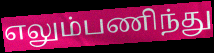
எலும்பணிந்து